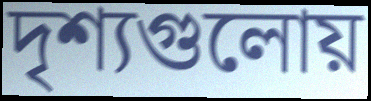
দৃশ্যগুলোয়